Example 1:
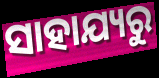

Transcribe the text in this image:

ସାହାଯ୍ୟରୁ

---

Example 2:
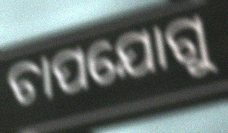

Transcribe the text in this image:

ଚାପଯୋଗୁ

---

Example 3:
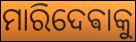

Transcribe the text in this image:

ମାରିଦେଵାକୁ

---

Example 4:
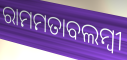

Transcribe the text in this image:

ରାମମତାବଲମ୍ବୀ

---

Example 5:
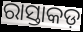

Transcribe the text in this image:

ରାସ୍ତାକଡ଼